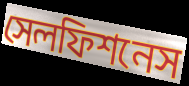
সেলফিশনেস